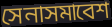
সেনাসমাবেশ